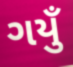
ગયુઁ